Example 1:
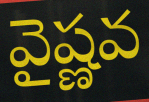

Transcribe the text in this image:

వైష్ణవ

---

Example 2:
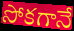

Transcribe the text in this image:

సోకగానే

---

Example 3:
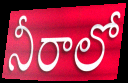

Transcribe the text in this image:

నీరాలో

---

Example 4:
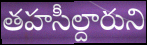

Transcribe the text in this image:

తహసీల్దారుని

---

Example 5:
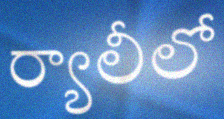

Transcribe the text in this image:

ర్యాలీలో